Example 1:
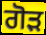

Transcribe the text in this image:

ਗੋੜ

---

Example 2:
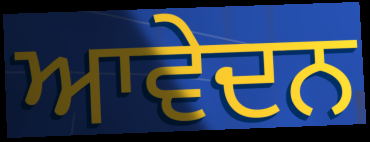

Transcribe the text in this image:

ਆਵੇਦਨ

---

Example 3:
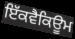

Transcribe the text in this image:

ਇੱਕਵੈਕਿਊਮ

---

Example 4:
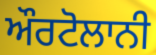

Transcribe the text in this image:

ਔਰਟੋਲਾਨੀ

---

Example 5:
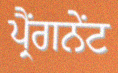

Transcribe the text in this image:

ਪ੍ਰੈਂਗਨੇਂਟ